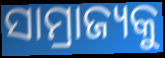
ସାମ୍ରାଜ୍ୟକୁ